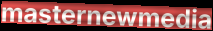
masternewmedia